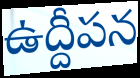
ఉద్దీపన